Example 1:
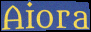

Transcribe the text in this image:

Aiora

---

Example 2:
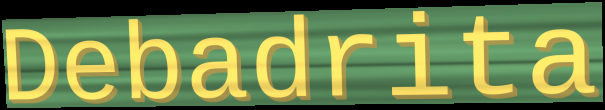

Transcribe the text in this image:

Debadrita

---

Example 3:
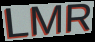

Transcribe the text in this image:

LMR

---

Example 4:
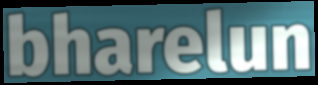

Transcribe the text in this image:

bharelun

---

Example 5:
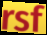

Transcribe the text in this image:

rsf